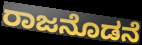
ರಾಜನೊಡನೆ